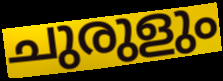
ചുരുളും